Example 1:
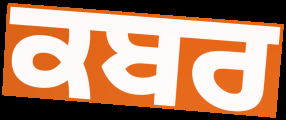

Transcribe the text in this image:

ਕਬਰ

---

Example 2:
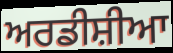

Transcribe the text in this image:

ਅਰਡੀਸ਼ੀਆ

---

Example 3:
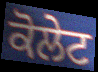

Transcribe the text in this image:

ਕੋਲੇਟ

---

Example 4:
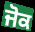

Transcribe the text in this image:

ਜੋਕ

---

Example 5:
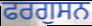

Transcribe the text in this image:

ਫਰਗੁਸਨ